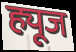
ह्यूज